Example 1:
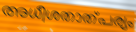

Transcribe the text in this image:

അധീശതാത്പര്യം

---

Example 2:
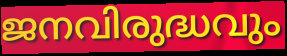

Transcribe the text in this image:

ജനവിരുദ്ധവും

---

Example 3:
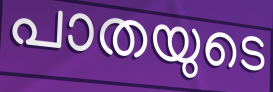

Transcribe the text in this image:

പാതയുടെ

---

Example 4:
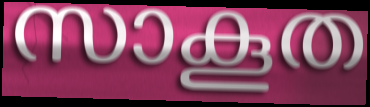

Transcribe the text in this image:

സാകൂത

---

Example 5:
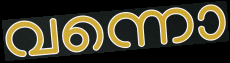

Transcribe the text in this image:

വന്നൊ